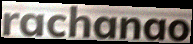
rachanao